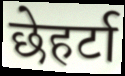
छेहर्टा